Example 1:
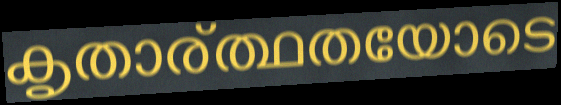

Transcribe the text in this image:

കൃതാര്ത്ഥതയോടെ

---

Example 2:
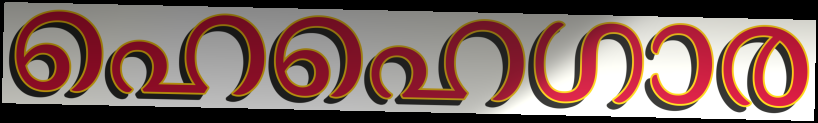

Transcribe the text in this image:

ഹെഹെഗാര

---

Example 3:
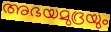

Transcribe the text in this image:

അഭയമുദ്രയും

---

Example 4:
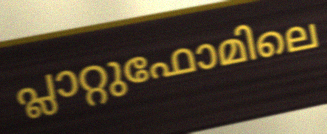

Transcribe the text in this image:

പ്ലാറ്റുഫോമിലെ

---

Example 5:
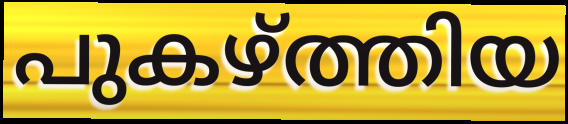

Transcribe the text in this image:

പുകഴ്ത്തിയ